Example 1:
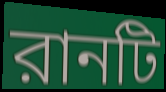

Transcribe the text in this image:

রানটি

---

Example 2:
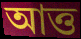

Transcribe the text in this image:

আত্ত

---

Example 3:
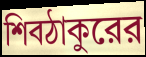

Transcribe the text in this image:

শিবঠাকুরের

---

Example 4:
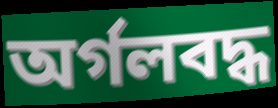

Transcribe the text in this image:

অর্গলবদ্ধ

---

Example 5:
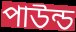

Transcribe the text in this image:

পাউন্ড